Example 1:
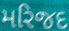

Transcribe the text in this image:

મરિજદ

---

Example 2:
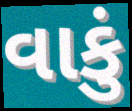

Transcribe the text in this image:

વાકું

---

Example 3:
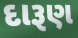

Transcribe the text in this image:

દારૂણ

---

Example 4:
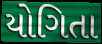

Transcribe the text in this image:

યોગિતા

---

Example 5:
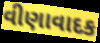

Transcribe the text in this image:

વીણાવાદક